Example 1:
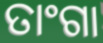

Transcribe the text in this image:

ତାଂଗା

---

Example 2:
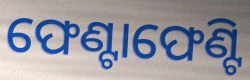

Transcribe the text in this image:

ଫେଣ୍ଟାଫେଣ୍ଟି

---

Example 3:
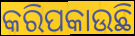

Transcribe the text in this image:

କରିପକାଉଛି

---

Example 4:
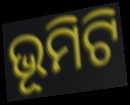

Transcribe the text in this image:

ଭୂମିଟି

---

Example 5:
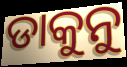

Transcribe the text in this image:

ଡାକୁନୁ